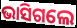
ଭାସିଗଲେ